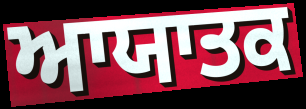
ਆਯਾਤਕ